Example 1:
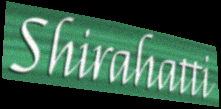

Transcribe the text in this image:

Shirahatti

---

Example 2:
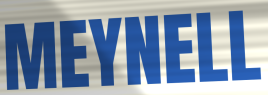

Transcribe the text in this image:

MEYNELL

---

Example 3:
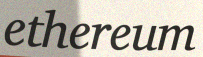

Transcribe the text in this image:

ethereum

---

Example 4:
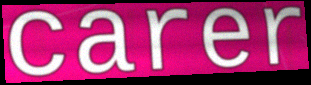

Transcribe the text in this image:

carer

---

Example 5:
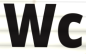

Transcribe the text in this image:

Wc